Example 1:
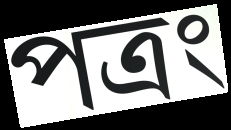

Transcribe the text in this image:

পত্রং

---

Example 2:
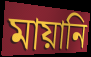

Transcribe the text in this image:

মায়ানি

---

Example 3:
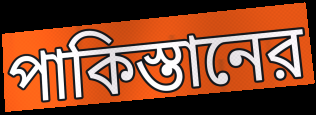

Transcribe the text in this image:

পাকিস্তানের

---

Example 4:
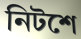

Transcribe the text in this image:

নিটশে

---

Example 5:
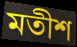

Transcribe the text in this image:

মতীশ